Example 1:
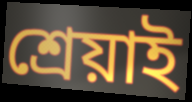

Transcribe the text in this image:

শ্ৰেয়াই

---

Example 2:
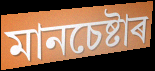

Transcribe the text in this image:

মানচেষ্টাৰ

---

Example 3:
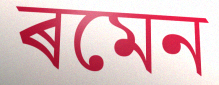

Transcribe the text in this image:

ৰমেন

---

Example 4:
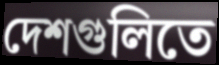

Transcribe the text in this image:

দেশগুলিতে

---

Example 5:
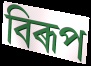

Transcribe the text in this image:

বিৰূপ